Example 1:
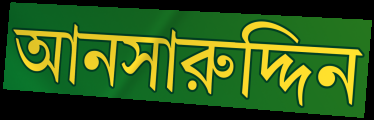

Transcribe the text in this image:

আনসারুদ্দিন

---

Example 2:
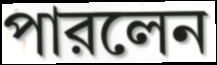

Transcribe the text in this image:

পারলেন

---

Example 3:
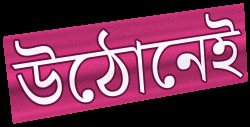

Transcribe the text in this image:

উঠোনেই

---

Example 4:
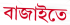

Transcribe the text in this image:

বাজাইতে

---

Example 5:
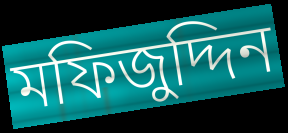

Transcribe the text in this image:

মফিজুদ্দিন